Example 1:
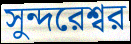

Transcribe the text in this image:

সুন্দরেশ্বর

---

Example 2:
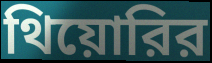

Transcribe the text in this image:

থিয়োরির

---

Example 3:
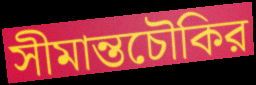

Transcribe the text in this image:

সীমান্তচৌকির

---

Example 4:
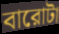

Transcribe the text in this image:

বারোটা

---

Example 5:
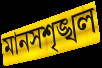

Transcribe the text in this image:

মানসশৃঙ্খল